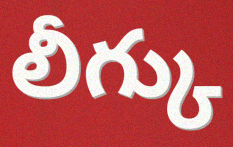
లీగ్కు